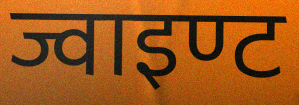
ज्वाइण्ट